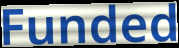
Funded